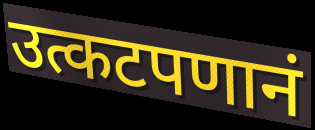
उत्कटपणानं